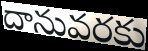
దానువరకు